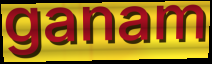
ganam